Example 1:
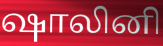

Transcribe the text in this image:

ஷாலினி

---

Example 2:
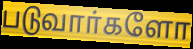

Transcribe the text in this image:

படுவார்களோ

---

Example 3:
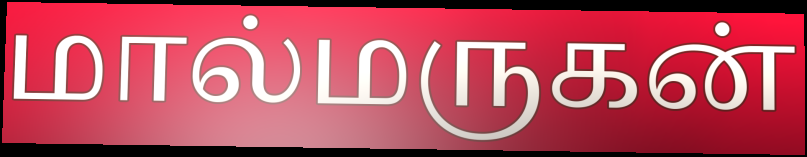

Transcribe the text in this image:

மால்மருகன்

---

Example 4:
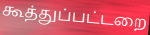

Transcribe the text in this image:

கூத்துப்பட்டறை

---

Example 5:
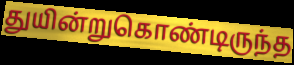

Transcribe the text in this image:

துயின்றுகொண்டிருந்த